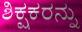
ಶಿಕ್ಷಕರನ್ನು